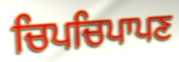
ਚਿਪਚਿਪਾਪਣ